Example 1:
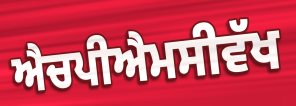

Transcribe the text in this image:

ਐਚਪੀਐਮਸੀਵੱਖ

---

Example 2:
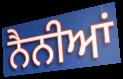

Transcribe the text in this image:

ਨੈਨੀਆਂ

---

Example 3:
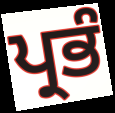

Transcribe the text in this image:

ਪ੍ਰਭੰ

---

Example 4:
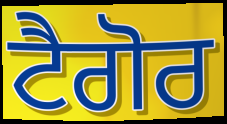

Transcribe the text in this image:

ਟੈਗੋਰ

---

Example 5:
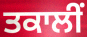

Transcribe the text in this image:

ਤਕਾਲੀਂ